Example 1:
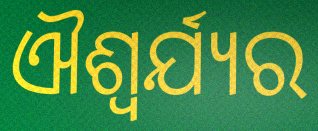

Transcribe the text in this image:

ଐଶ୍ୱର୍ଯ୍ୟର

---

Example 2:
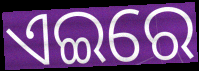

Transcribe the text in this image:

ଏଇରେ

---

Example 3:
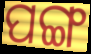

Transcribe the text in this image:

ପଙ୍ଗ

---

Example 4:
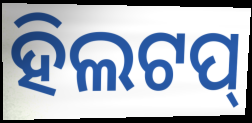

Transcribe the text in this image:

ହିଲଟପ୍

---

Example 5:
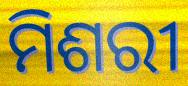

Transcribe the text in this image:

ମିଶରୀ